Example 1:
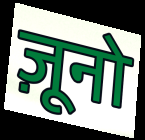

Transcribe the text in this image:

ज़ूनो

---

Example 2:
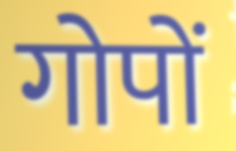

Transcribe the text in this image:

गोपों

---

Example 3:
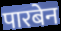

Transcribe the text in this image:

पारबेन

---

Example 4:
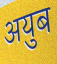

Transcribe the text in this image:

अयुब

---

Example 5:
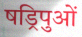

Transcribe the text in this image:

षड्रिपुओं